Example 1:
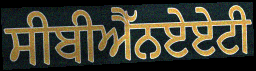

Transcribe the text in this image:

ਸੀਬੀਐੱਨਏਏਟੀ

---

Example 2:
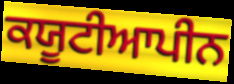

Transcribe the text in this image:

ਕਯੂਟੀਆਪੀਨ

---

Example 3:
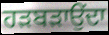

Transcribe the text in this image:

ਹੜਬੜਾਉਂਦਾ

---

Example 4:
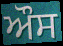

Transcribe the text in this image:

ਔਸ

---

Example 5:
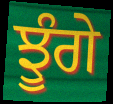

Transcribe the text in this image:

ਝੂੰਗੇ